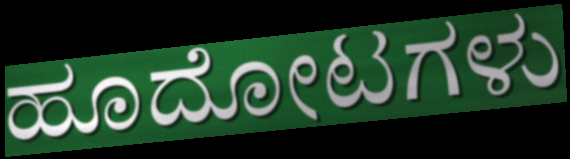
ಹೂದೋಟಗಳು